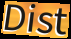
Dist